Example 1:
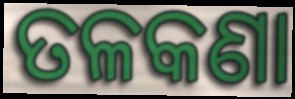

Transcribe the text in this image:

ତଳକଣା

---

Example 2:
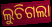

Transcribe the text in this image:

ଲୁଚିଗଲା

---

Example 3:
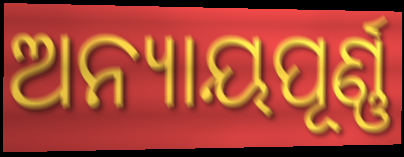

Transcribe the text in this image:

ଅନ୍ୟାୟପୂର୍ଣ୍ଣ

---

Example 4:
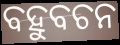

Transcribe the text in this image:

ବହୁବଚନ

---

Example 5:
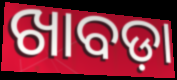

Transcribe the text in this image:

ଖାବଡ଼ା